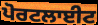
ਪੋਰਟਲਾਈਟ